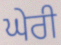
ਘੇਰੀ